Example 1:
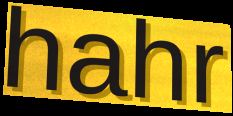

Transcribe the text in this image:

hahr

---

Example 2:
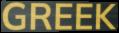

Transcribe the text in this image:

GREEK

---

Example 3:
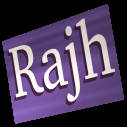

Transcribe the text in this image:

Rajh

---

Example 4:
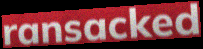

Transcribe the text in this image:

ransacked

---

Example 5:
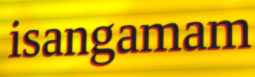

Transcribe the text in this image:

isangamam